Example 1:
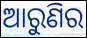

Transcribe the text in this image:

ଆରୁଣିର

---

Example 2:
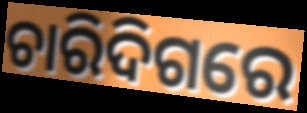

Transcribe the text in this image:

ଚାରିଦିଗରେ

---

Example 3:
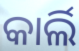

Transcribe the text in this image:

କାର୍ଲି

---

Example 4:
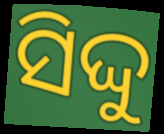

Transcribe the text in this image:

ସିଦ୍ଦୁ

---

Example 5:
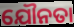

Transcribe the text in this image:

ଯୌନତା